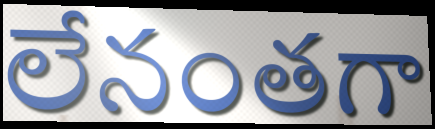
లేనంతగా